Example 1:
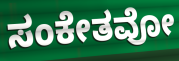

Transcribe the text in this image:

ಸಂಕೇತವೋ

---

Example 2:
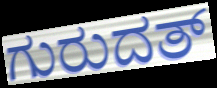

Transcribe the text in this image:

ಗುರುದತ್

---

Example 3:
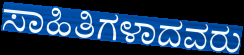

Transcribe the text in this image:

ಸಾಹಿತಿಗಳಾದವರು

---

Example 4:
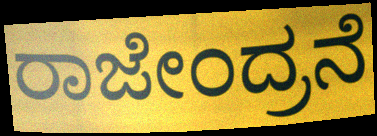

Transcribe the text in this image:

ರಾಜೇಂದ್ರನೆ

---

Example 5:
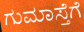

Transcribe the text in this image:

ಗುಮಾಸ್ತೆಗೆ